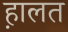
ह़ालत